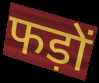
फड़ों